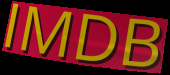
IMDB